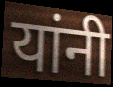
यांनी